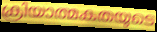
ക്രിയാത്മകതയുടെ